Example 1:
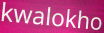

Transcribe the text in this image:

kwalokho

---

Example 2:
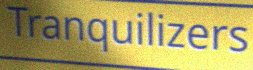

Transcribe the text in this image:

Tranquilizers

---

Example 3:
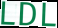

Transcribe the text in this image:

LDL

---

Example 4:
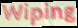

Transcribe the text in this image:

Wiping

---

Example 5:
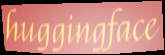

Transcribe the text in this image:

huggingface